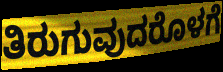
ತಿರುಗುವುದರೊಳಗೆ